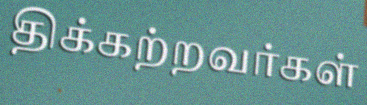
திக்கற்றவர்கள்